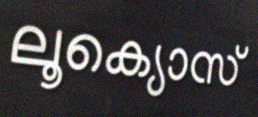
ലൂക്യൊസ്